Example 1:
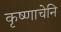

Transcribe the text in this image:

कृष्णाचेनि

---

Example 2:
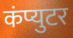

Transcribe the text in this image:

कंप्युटर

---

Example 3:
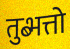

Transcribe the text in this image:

तुब्भत्तो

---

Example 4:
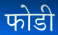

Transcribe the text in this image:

फोडी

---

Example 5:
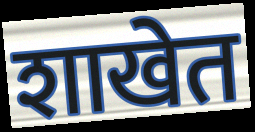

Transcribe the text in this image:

शाखेत